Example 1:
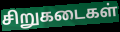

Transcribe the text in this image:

சிறுகடைகள்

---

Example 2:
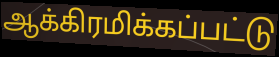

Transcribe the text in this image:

ஆக்கிரமிக்கப்பட்டு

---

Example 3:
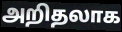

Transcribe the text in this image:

அறிதலாக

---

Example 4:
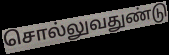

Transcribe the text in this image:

சொல்லுவதுண்டு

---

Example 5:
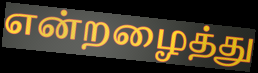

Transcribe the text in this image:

என்றழைத்து